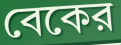
বেকের